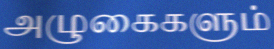
அழுகைகளும்